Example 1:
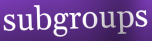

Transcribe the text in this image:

subgroups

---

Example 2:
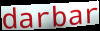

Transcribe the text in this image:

darbar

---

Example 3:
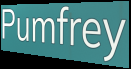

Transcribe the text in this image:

Pumfrey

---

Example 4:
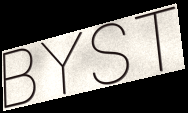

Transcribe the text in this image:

BYST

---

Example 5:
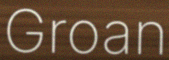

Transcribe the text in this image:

Groan